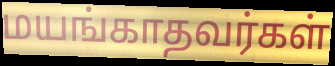
மயங்காதவர்கள்